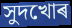
সুদখোৰ